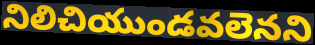
నిలిచియుండవలెనని